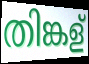
തിങ്കള്